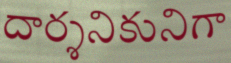
దార్శనికునిగా